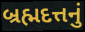
બ્રહ્મદત્તનું